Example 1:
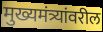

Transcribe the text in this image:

मुख्यमंत्र्यांवरील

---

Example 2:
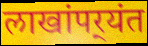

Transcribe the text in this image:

लाखांपर्यंत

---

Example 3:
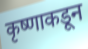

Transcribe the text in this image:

कृष्णाकडून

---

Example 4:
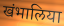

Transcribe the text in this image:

खंभालिया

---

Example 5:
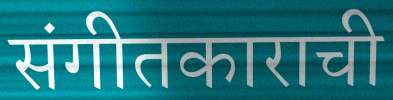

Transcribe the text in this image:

संगीतकाराची